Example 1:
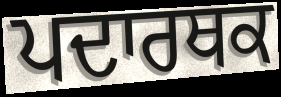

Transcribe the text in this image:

ਪਦਾਰਥਕ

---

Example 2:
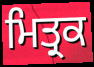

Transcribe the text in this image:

ਮਿਤ੍ਰਕ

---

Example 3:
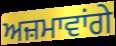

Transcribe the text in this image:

ਅਜ਼ਮਾਵਾਂਗੇ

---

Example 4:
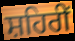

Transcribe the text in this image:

ਸ਼ਹਿਰੀਂ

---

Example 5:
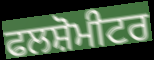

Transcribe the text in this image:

ਫਲਸ਼ੋਮੀਟਰ